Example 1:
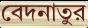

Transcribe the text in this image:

বেদনাতুর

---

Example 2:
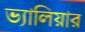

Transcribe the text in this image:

ভ্যালিয়ার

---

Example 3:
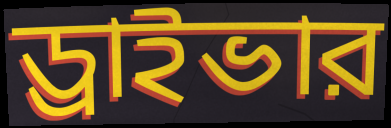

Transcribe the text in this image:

ড্রাইভার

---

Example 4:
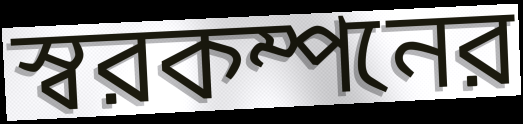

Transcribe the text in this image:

স্বরকম্পনের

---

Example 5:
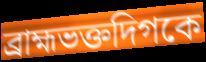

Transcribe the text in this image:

ব্রাহ্মভক্তদিগকে